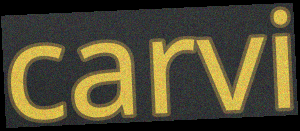
carvi